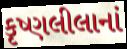
કૃષ્ણલીલાનાં